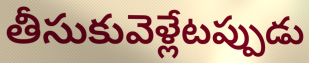
తీసుకువెళ్లేటప్పుడు